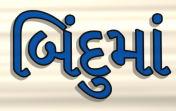
બિંદુમાં